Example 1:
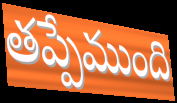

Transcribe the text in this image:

తప్పేముంది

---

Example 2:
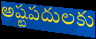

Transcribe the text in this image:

అష్టపదులకు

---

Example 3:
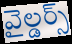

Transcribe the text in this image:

వైల్డర్స్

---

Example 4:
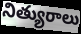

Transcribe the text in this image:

నిత్యురాలు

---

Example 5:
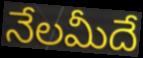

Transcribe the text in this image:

నేలమీదే